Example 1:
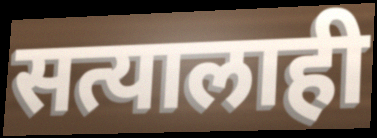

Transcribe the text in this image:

सत्यालाही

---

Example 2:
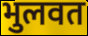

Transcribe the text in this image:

भुलवत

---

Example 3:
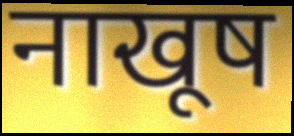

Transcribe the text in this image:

नाखूष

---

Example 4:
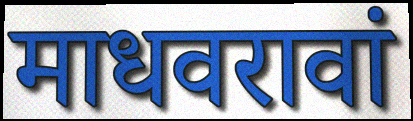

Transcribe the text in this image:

माधवरावां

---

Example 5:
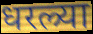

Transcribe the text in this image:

धरल्या